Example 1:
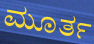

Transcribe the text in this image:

ಮೂರ್ತ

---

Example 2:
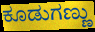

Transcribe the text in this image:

ಕೂಡುಗಣ್ಣು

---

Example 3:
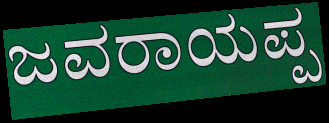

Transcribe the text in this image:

ಜವರಾಯಪ್ಪ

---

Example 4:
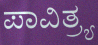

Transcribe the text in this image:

ಪಾವಿತ್ರ್ಯ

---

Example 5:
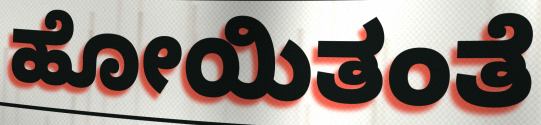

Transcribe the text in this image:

ಹೋಯಿತಂತೆ